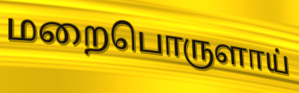
மறைபொருளாய்